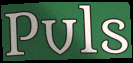
Puls